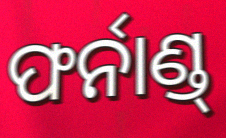
ଫର୍ନାଣ୍ଡ୍